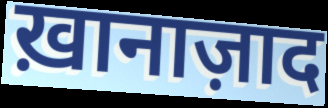
ख़ानाज़ाद